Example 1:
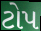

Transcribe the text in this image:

ટોપ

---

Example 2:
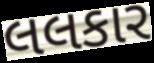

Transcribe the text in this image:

લલકાર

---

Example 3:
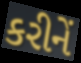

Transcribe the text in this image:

કરીનેં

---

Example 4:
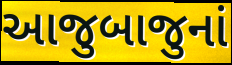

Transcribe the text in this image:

આજુબાજુનાં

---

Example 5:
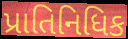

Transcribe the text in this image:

પ્રાતિનિધિક